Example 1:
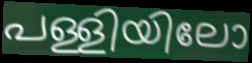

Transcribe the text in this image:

പള്ളിയിലോ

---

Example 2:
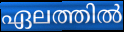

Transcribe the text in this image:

ഏലത്തിൽ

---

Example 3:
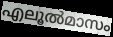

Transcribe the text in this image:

എലൂൽമാസം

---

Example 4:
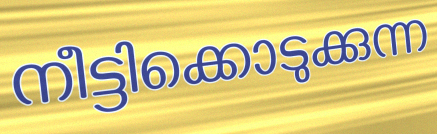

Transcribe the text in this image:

നീട്ടിക്കൊടുക്കുന്ന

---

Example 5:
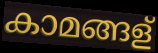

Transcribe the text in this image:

കാമങ്ങള്